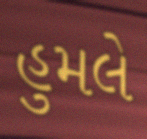
હુમલે